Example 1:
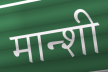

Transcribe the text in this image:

मान्शी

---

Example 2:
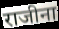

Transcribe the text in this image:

राजीना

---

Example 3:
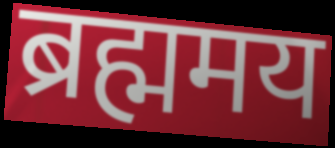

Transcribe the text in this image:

ब्रह्ममय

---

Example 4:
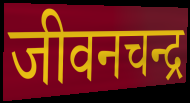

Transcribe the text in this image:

जीवनचन्द्र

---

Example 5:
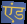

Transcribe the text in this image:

एंड